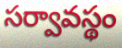
సర్వావస్థం